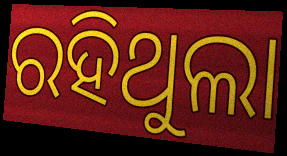
ରହିଥୁଲା